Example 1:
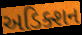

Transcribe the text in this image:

અડિક્શન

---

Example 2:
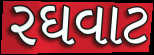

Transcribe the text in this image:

રઘવાટ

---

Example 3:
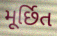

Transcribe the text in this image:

મૂર્છિત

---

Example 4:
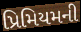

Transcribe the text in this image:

પ્રિમિયમની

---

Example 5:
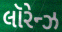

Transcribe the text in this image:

લૉરેન્ઝ